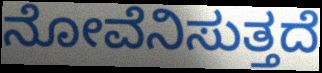
ನೋವೆನಿಸುತ್ತದೆ